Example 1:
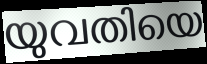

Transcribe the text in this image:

യുവതിയെ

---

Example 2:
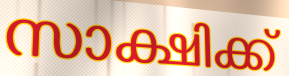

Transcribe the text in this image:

സാക്ഷിക്ക്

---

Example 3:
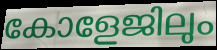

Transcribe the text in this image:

കോളേജിലും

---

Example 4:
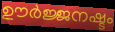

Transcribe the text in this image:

ഊർജ്ജനഷ്ടം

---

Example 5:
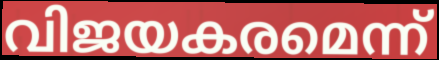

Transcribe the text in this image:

വിജയകരമെന്ന്